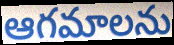
ఆగమాలను